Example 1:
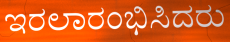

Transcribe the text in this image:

ಇರಲಾರಂಭಿಸಿದರು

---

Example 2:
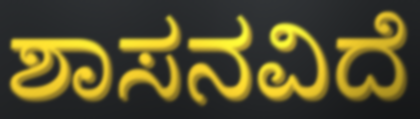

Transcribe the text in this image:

ಶಾಸನವಿದೆ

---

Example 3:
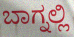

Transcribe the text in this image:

ಬಾಗ್ನಲ್ಲಿ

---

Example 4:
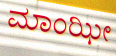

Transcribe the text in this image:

ಮಾಂಝೀ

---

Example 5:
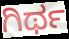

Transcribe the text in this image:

ಗಿರ್ಥ